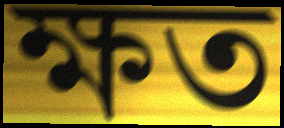
ক্ষত